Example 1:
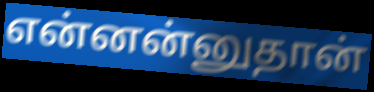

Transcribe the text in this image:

என்னன்னுதான்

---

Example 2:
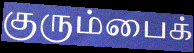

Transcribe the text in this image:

குரும்பைக்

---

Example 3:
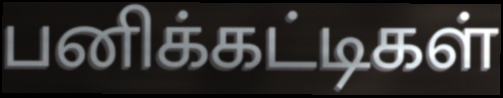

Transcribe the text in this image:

பனிக்கட்டிகள்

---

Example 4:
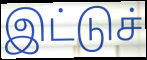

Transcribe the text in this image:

இட்டுச்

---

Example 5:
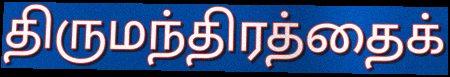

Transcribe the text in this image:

திருமந்திரத்தைக்